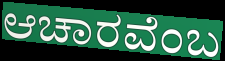
ಆಚಾರವೆಂಬ